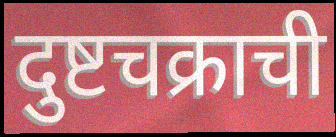
दुष्टचक्राची